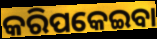
କରିପକେଇବା